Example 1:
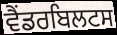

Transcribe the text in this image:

ਵੈਂਡਰਬਿਲਟਸ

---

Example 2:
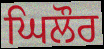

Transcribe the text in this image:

ਘਿਲੌਰ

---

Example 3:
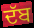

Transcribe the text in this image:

ਦੱਬ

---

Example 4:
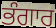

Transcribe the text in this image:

ਭੰਗਾਰ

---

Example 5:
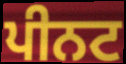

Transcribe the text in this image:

ਪੀਨਟ